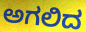
ಅಗಲಿದ